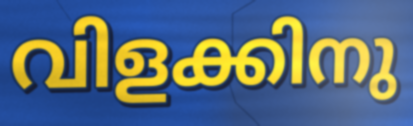
വിളക്കിനു